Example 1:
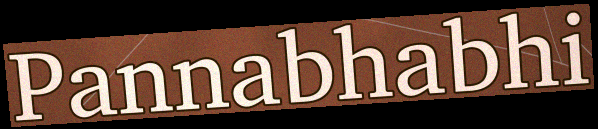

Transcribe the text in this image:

Pannabhabhi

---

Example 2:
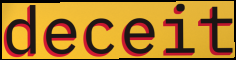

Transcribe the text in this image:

deceit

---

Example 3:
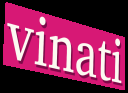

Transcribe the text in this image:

vinati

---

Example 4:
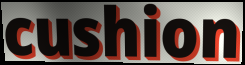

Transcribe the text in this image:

cushion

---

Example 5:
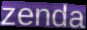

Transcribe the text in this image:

zenda